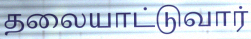
தலையாட்டுவார்